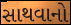
સાથવાનો